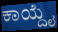
ಕಾಯ್ದೈ